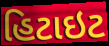
હિટાઇટ